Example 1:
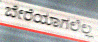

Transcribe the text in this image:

ಬೇರೆಯಾಗಲಿಲ್ಲ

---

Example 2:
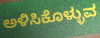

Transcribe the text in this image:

ಅಳಿಸಿಕೊಳ್ಳುವ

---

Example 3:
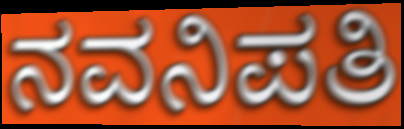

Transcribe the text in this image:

ನವನಿಪತಿ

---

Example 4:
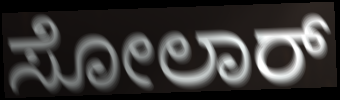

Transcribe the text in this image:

ಸೋಲಾರ್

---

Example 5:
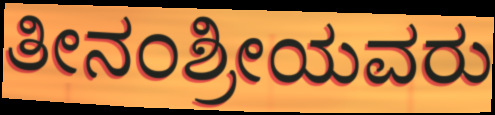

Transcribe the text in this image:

ತೀನಂಶ್ರೀಯವರು